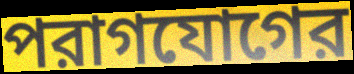
পরাগযোগের